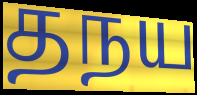
தநய